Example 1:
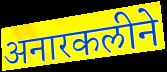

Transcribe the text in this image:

अनारकलीने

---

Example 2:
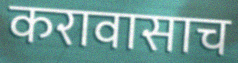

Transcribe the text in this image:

करावासाच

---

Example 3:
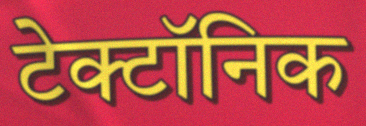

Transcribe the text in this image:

टेक्टॉनिक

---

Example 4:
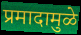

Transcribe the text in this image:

प्रमादामुळे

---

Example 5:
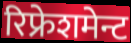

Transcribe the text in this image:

रिफ्रेशमेन्ट